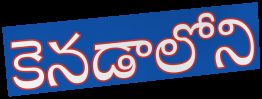
కెనడాలోని